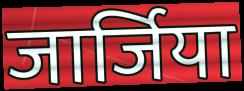
जार्जिया